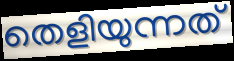
തെളിയുന്നത്